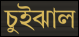
চুইঝাল